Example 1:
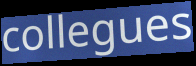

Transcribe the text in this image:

collegues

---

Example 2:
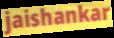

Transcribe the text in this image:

jaishankar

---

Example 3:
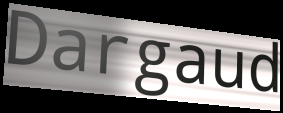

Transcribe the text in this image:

Dargaud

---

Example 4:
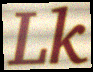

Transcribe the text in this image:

Lk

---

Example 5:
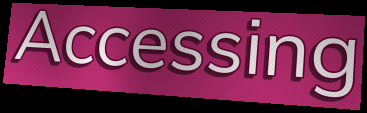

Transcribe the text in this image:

Accessing